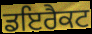
ਡਇਰੈਕਟ